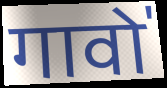
गावो॑